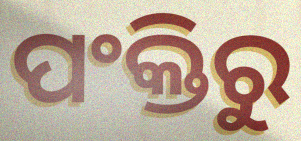
ପଂକ୍ତିରୁ